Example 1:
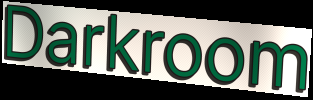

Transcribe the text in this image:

Darkroom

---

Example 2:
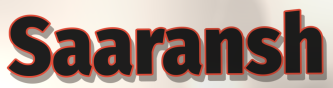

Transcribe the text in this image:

Saaransh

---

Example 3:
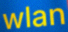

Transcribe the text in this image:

wlan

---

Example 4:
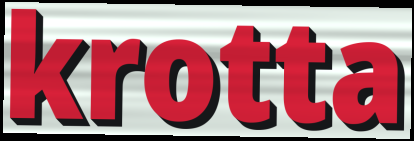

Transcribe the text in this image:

krotta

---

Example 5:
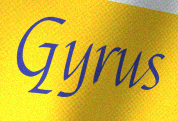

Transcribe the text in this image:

Gyrus